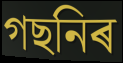
গছনিৰ